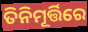
ତିନିମୂର୍ତ୍ତିରେ